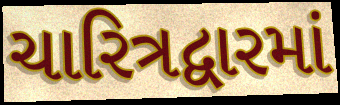
ચારિત્રદ્વારમાં